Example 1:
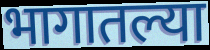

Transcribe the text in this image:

भागातल्या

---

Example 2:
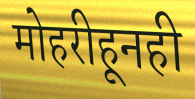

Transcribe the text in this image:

मोहरीहूनही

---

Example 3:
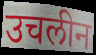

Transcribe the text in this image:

उचलीन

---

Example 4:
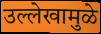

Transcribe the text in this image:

उल्लेखामुळे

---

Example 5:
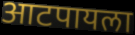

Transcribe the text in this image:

आटपायला